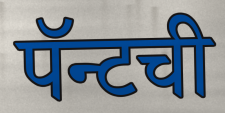
पॅन्टची